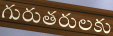
గురుతరులకు